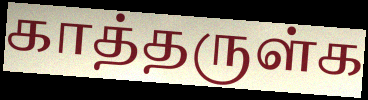
காத்தருள்க